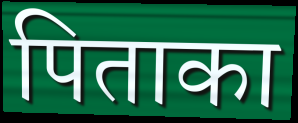
पिताका